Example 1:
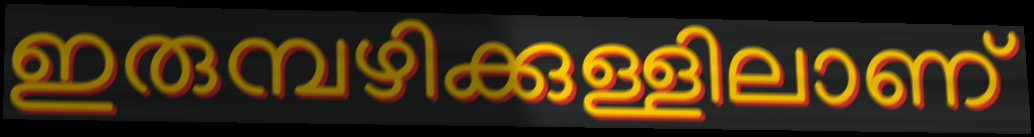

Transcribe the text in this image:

ഇരുമ്പഴിക്കുള്ളിലാണ്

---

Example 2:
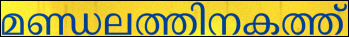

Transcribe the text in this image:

മണ്ഡലത്തിനകത്ത്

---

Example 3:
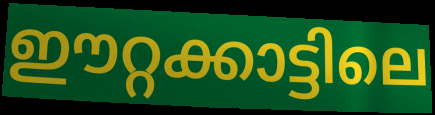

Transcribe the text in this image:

ഈറ്റക്കാട്ടിലെ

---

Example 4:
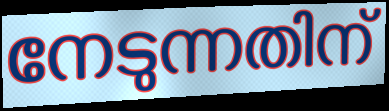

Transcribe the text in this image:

നേടുന്നതിന്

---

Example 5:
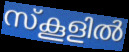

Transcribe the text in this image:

സ്‌കൂളിൽ